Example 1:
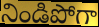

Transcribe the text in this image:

నిండిపోగా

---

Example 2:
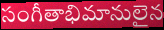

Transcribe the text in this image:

సంగీతాభిమానులైన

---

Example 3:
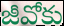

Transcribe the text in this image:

జీవోకు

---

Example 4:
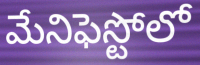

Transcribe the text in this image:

మేనిఫెస్టోలో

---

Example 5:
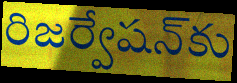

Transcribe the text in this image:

రిజర్వేషన్‌కు